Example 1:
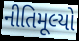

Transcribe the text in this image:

નીતિમૂલ્યો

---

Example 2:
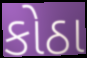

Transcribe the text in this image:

કોઠા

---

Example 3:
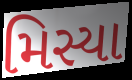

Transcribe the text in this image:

મિસ્યા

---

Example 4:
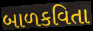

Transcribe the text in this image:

બાળકવિતા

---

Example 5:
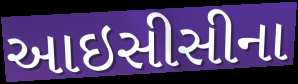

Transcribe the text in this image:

આઇસીસીના